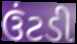
ઉંટડી